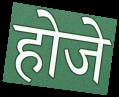
होजे